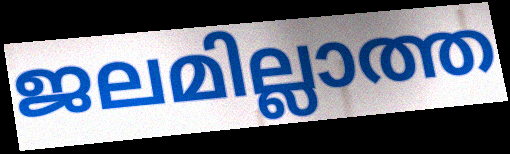
ജലമില്ലാത്ത